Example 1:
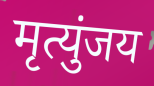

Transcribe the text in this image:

मृत्युंजय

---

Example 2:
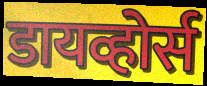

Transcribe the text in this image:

डायव्होर्स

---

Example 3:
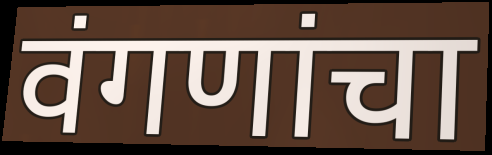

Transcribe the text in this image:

वंगणांचा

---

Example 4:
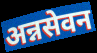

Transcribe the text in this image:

अन्नसेवन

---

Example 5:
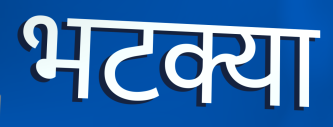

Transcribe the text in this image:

भटक्या